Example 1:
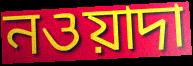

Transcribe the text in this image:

নওয়াদা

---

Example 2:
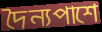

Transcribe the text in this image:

দৈন্যপাশে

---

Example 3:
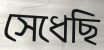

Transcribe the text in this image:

সেধেছি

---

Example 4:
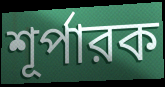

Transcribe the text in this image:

শূর্পারক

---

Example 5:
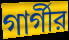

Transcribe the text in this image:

গার্গীর